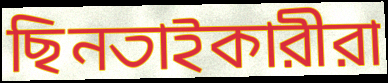
ছিনতাইকারীরা